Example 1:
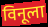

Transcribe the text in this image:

विनूला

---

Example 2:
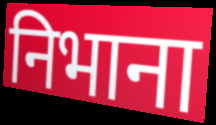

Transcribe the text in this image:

निभाना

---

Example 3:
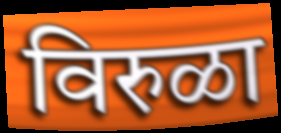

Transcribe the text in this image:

विरुळा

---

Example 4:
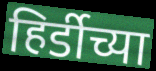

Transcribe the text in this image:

हिर्डीच्या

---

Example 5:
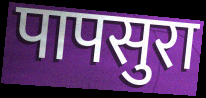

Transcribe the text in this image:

पापसुरा